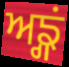
ਅਙ੍ਗਂ